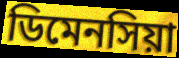
ডিমেনসিয়া